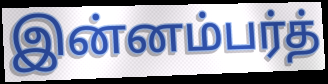
இன்னம்பர்த்